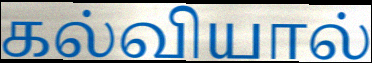
கல்வியால்